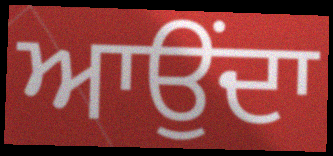
ਆਉੰਦਾ